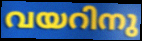
വയറിനു